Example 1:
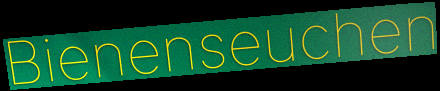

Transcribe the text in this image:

Bienenseuchen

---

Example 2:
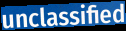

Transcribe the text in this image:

unclassified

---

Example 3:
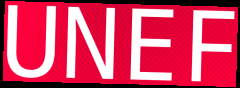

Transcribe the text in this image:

UNEF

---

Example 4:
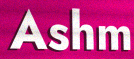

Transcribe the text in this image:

Ashm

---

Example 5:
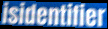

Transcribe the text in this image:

isidentifier